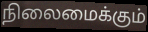
நிலைமைக்கும்